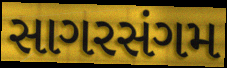
સાગરસંગમ